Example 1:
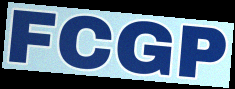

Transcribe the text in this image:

FCGP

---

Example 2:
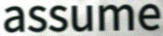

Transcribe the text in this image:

assume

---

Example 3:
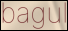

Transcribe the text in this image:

bagul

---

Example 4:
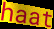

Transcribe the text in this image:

haat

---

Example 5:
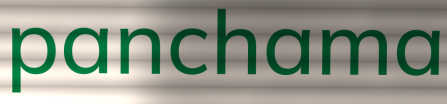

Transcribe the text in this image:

panchama